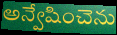
అన్వేషించెను